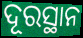
ଦୂରସ୍ଥାନ